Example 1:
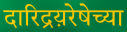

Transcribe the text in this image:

दारिद्रय़रेषेच्या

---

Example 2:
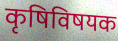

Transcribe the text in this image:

कृषिविषयक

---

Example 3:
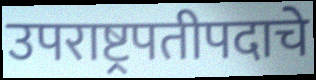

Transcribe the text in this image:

उपराष्ट्रपतीपदाचे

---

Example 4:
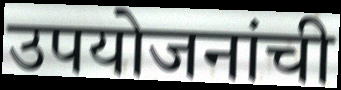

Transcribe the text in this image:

उपयोजनांची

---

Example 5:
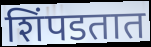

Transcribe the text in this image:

शिंपडतात